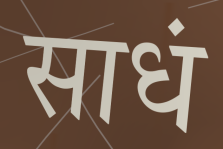
साधं